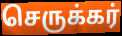
செருக்கர்